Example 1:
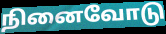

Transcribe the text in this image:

நினைவோடு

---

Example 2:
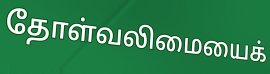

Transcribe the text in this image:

தோள்வலிமையைக்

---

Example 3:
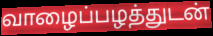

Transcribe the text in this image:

வாழைப்பழத்துடன்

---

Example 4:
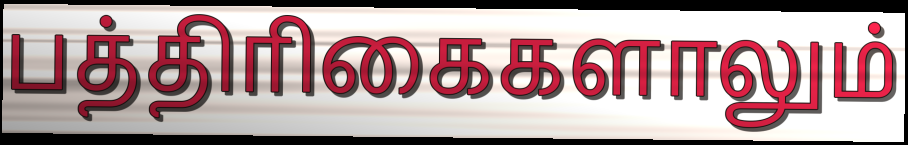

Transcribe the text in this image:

பத்திரிகைகளாலும்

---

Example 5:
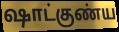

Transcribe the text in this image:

ஷாட்குண்ய